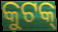
କୁଟକ୍